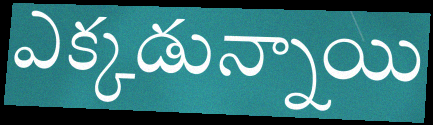
ఎక్కడున్నాయి